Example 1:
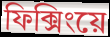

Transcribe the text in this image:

ফিক্সিংয়ে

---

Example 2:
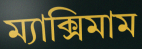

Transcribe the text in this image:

ম্যাক্সিমাম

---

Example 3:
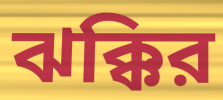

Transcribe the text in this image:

ঝক্কির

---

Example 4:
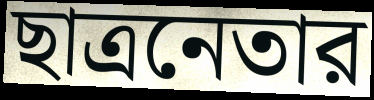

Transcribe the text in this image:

ছাত্রনেতার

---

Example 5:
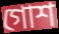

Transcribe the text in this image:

গোশ